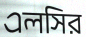
এলসির